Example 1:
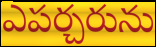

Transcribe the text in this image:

ఎపర్చరును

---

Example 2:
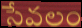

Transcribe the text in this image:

సేవలం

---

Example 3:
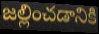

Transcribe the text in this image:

జల్లించడానికి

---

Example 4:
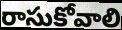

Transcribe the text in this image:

రాసుకోవాలి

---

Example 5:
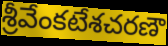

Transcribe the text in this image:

శ్రీవేంకటేశచరణౌ